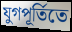
যুগপূর্তিতে